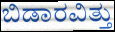
ಬಿಡಾರವಿತ್ತು